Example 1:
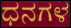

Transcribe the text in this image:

ಧನಗಳ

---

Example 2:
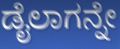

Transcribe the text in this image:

ಡೈಲಾಗನ್ನೇ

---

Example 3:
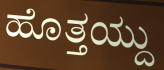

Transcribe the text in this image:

ಹೊತ್ತಯ್ದು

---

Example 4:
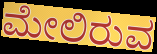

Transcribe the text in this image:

ಮೇಲಿರುವ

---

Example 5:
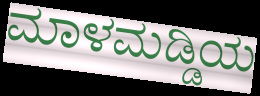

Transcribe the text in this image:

ಮಾಳಮಡ್ಡಿಯ